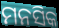
ମନସିକ